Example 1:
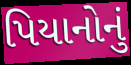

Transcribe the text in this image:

પિયાનોનું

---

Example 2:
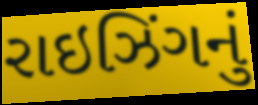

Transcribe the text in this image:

રાઇઝિંગનું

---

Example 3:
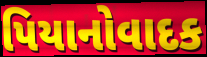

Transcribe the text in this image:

પિયાનોવાદક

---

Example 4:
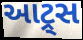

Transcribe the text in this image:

આટ્ર્સ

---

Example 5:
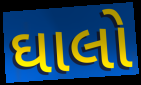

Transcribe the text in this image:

ઘાલો